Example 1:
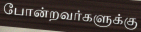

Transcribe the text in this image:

போன்றவர்களுக்கு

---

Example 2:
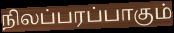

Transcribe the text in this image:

நிலப்பரப்பாகும்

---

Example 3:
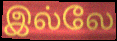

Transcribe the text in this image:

இல்லே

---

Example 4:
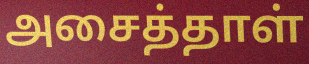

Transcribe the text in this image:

அசைத்தாள்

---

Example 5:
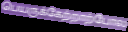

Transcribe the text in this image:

பெயருக்கேற்றாற்போல